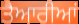
ਤੈਆਰੀਆਂ